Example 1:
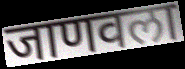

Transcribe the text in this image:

जाणवला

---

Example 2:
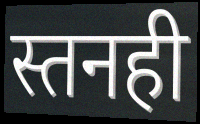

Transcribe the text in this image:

स्तनही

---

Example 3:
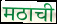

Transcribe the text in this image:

मठाची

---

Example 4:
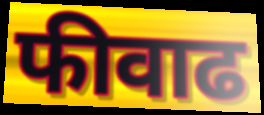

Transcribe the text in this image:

फीवाढ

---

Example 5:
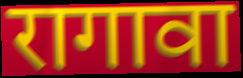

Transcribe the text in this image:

रागावा